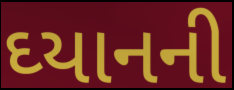
ઘ્યાનની